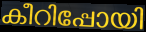
കീറിപ്പോയി